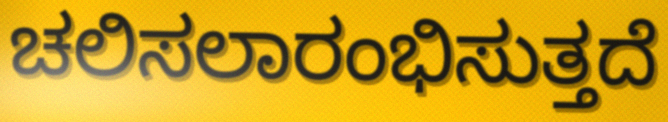
ಚಲಿಸಲಾರಂಭಿಸುತ್ತದೆ